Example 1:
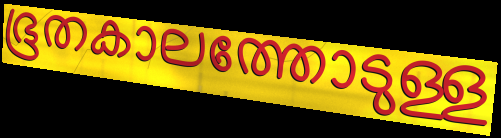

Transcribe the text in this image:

ഭൂതകാലത്തോടുള്ള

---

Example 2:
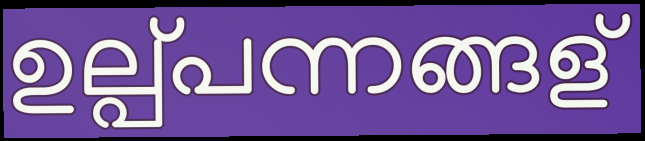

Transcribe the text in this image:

ഉല്പ്പന്നങ്ങള്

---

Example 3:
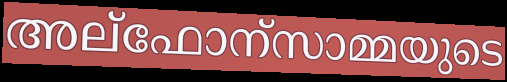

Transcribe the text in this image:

അല്ഫോന്സാമ്മയുടെ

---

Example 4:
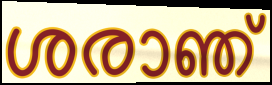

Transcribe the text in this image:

ശരാഞ്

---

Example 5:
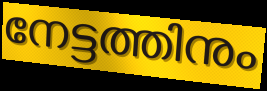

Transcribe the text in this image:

നേട്ടത്തിനും